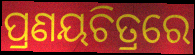
ପ୍ରଣୟଚିତ୍ରରେ